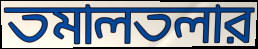
তমালতলার